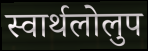
स्वार्थलोलुप